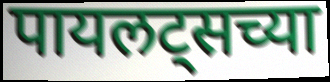
पायलट्सच्या